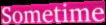
Sometime